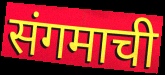
संगमाची